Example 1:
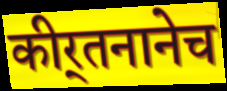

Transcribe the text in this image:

कीर्तनानेच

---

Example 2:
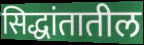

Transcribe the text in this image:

सिद्धांतातील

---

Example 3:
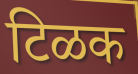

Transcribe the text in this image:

टिळक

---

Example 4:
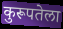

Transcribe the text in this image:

कुरूपतेला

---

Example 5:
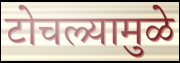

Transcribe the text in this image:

टोचल्यामुळे